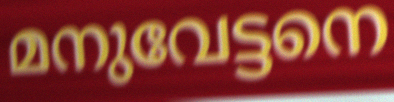
മനുവേട്ടനെ